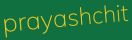
prayashchit